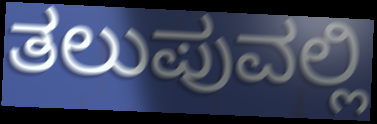
ತಲುಪುವಲ್ಲಿ